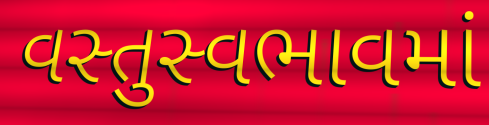
વસ્તુસ્વભાવમાં